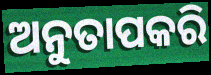
ଅନୁତାପକରି